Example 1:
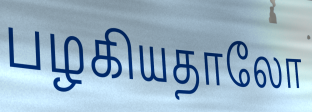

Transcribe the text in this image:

பழகியதாலோ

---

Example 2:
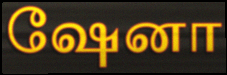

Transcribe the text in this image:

ஷேனா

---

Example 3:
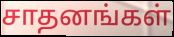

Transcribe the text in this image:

சாதனங்கள்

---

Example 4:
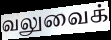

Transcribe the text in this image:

வலுவைக்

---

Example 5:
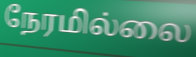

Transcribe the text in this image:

நேரமில்லை